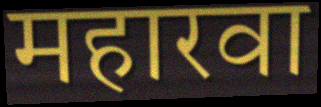
महारवा